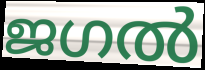
ജഗൽ